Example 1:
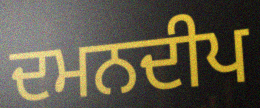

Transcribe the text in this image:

ਦਮਨਦੀਪ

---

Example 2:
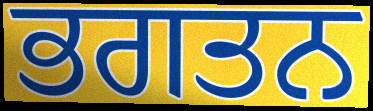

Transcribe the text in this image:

ਭਗਤਨ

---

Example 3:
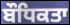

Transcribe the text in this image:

ਬੌਧਿਕਤਾ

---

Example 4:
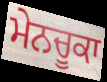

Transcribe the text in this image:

ਮੇਨਚੂਕਾ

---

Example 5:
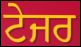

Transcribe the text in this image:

ਟੇਜਰ